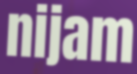
nijam